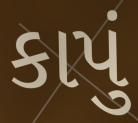
કાપું